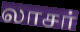
லாசர்